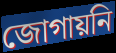
জোগায়নি